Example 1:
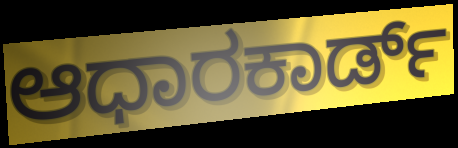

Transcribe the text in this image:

ಆಧಾರಕಾರ್ಡ್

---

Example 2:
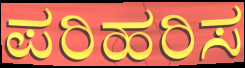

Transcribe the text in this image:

ಪರಿಹರಿಸ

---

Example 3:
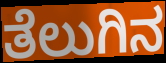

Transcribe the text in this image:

ತೆಲುಗಿನ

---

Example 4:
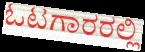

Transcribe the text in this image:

ಓಟಗಾರರಲ್ಲಿ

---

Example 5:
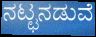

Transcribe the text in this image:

ನಟ್ಟನಡುವೆ